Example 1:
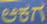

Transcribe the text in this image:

ಆಕಗ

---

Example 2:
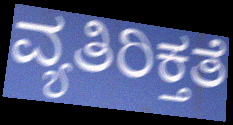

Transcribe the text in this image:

ವ್ಯತಿರಿಕ್ತತೆ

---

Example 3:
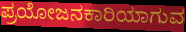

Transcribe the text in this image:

ಪ್ರಯೋಜನಕಾರಿಯಾಗುವ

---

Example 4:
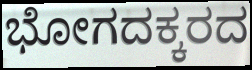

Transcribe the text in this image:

ಭೋಗದಕ್ಕರದ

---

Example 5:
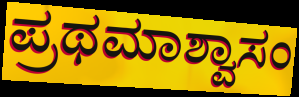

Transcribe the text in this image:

ಪ್ರಥಮಾಶ್ವಾಸಂ